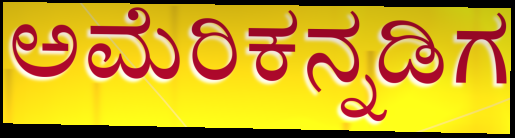
ಅಮೆರಿಕನ್ನಡಿಗ